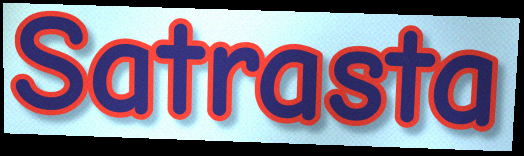
Satrasta